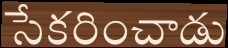
సేకరించాడు